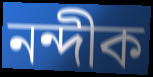
নন্দীক